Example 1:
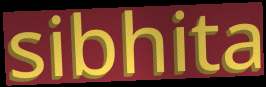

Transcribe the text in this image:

sibhita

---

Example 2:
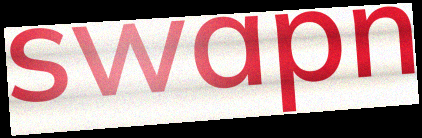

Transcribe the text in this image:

swapn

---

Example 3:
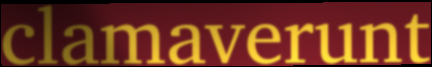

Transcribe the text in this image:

clamaverunt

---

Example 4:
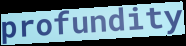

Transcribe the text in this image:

profundity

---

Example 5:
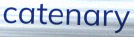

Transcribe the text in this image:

catenary